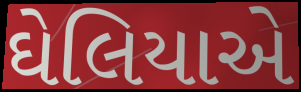
ઘેલિયાએ